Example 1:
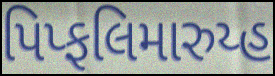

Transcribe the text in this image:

પિપ્ફલિમારુય્હ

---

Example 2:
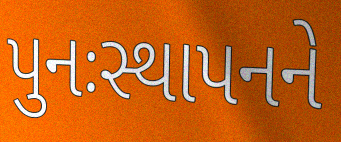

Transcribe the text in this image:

પુનઃસ્થાપનને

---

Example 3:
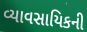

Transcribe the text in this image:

વ્યાવસાયિકની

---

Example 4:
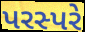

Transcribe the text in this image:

પરસ્પરે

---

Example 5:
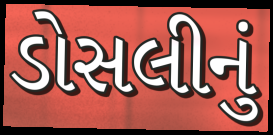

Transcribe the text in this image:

ડોસલીનું